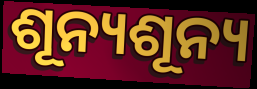
ଶୂନ୍ୟଶୂନ୍ୟ